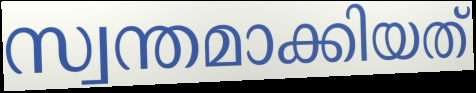
സ്വന്തമാക്കിയത്